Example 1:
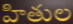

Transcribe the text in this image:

హితుల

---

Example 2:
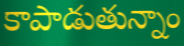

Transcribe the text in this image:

కాపాడుతున్నాం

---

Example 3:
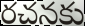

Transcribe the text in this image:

రచనకు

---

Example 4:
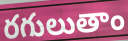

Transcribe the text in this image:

రగులుతాం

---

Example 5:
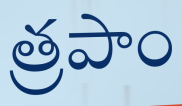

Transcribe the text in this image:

త్రపాం